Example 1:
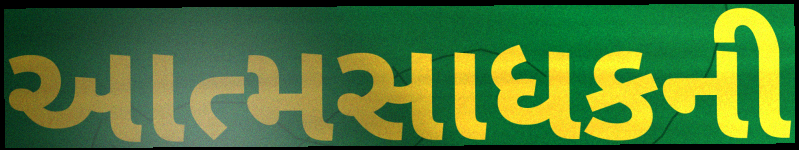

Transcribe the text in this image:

આત્મસાધકની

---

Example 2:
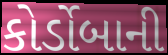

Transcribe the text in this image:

કોર્ડોબાની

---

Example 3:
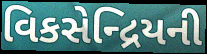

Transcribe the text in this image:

વિકસેન્દ્રિયની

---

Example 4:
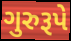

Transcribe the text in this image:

ગુરુરૂપે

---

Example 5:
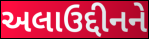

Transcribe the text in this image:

અલાઉદ્દીનને